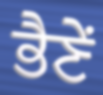
ਭੈਣੇਂ